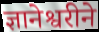
ज्ञानेश्वरीने